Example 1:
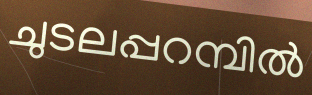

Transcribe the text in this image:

ചുടലപ്പറമ്പിൽ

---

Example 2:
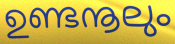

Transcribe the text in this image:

ഉണ്ടനൂലും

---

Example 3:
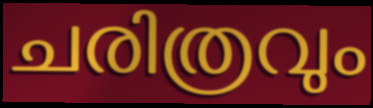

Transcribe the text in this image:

ചരിത്രവും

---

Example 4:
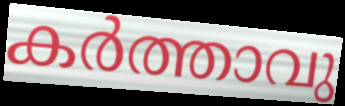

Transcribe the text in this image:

കർത്താവു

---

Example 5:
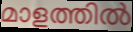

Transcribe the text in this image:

മാളത്തിൽ